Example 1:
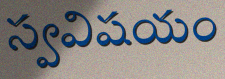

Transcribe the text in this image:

స్వవిషయం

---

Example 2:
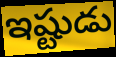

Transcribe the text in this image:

ఇష్టుడు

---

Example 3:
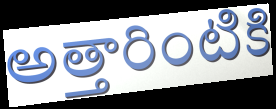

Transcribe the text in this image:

అత్తారింటికి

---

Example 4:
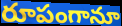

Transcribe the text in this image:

రూపంగానూ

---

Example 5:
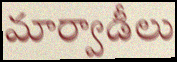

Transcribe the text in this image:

మార్వాడీలు